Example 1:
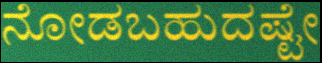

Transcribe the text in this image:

ನೋಡಬಹುದಷ್ಟೇ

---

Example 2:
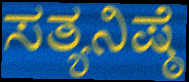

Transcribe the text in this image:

ಸತ್ಯನಿಷ್ಠೆ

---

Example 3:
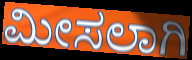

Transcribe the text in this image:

ಮೀಸಲಾಗಿ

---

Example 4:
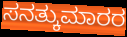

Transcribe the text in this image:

ಸನತ್ಕುಮಾರರ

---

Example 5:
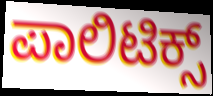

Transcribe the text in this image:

ಪಾಲಿಟಿಕ್ಸ್